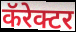
कॅरेक्टर